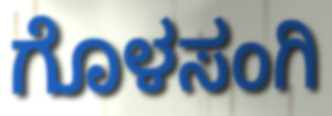
ಗೊಳಸಂಗಿ